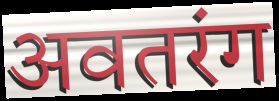
अवतरंग